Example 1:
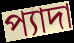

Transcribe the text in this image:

প্যাদা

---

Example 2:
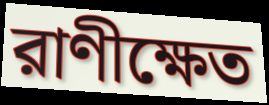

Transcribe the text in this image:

রাণীক্ষেত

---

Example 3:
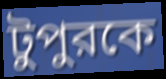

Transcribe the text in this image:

টুপুরকে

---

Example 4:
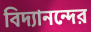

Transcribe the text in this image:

বিদ্যানন্দের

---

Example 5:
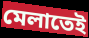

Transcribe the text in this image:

মেলাতেই